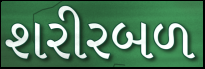
શરીરબળ